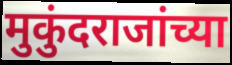
मुकुंदराजांच्या